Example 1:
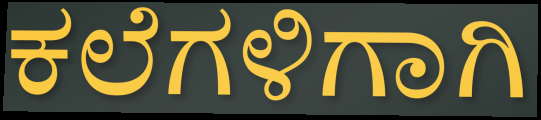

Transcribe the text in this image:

ಕಲೆಗಳಿಗಾಗಿ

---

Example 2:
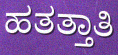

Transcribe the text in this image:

ಹತತ್ತಾತಿ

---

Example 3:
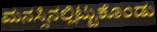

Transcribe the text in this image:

ಮನಸ್ಸಿನಲ್ಲಿಟ್ಟುಕೊಂಡು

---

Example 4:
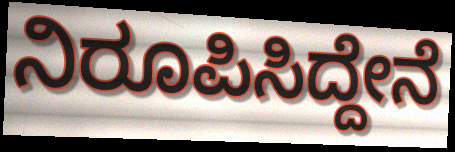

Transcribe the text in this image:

ನಿರೂಪಿಸಿದ್ದೇನೆ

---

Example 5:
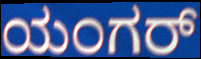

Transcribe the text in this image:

ಯಂಗರ್